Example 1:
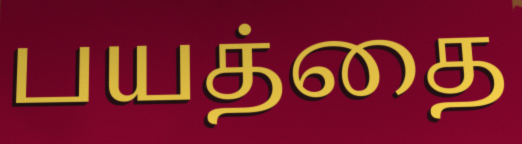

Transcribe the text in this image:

பயத்தை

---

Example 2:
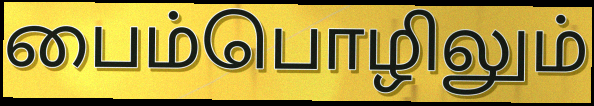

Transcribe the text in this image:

பைம்பொழிலும்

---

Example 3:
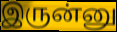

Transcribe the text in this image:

இருன்னு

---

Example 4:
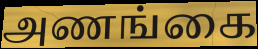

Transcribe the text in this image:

அணங்கை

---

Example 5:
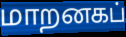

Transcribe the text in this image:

மாறனகப்